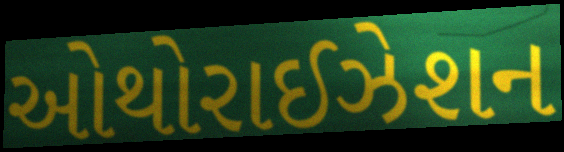
ઓથોરાઈઝેશન